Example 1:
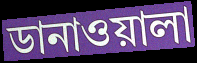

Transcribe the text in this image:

ডানাওয়ালা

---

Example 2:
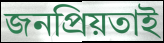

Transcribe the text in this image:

জনপ্রিয়তাই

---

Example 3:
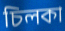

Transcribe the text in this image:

চিলকা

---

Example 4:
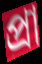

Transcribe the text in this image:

প্রা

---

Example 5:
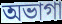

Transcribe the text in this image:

অভাগা